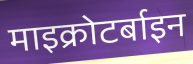
माइक्रोटर्बाइन